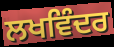
ਲਖਵਿੰਦਰ